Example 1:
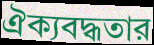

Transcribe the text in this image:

ঐক্যবদ্ধতার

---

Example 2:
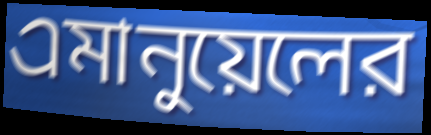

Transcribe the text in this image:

এমানুয়েলের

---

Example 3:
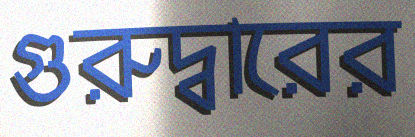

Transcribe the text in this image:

গুরুদ্বারের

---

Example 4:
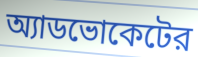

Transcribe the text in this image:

অ্যাডভোকেটের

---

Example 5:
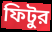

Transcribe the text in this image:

ফিটুর